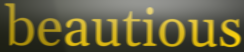
beautious